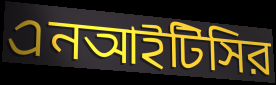
এনআইটিসির